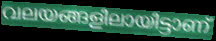
വലയങ്ങളിലായിട്ടാണ്